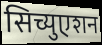
सिच्युएशन